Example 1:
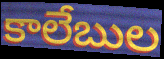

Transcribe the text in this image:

కాలేబుల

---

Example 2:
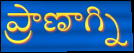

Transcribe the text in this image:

ప్రాణాగ్ని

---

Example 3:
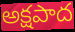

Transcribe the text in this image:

అక్షపాద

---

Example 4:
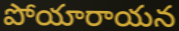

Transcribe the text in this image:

పోయారాయన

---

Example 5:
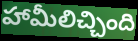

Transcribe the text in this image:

హామీలిచ్చింది